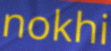
nokhi